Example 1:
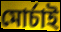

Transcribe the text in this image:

মোর্চাই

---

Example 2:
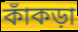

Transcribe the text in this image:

কাঁকড়া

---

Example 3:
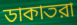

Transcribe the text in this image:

ডাকাতরা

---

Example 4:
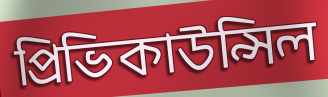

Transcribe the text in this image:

প্রিভিকাউন্সিল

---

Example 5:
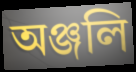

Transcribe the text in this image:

অঞ্জলি